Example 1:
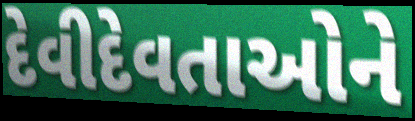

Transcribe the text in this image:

દેવીદેવતાઓને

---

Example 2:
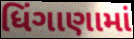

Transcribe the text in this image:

ધિંગાણામાં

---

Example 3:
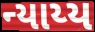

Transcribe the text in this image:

ન્યાય્ય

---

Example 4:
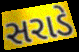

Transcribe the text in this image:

સરાડે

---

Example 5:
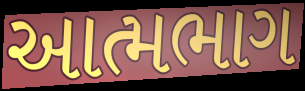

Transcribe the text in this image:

આત્મભાગ